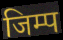
जिम्प